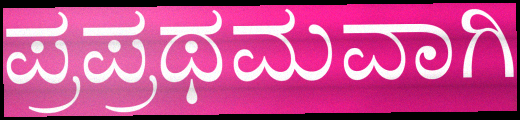
ಪ್ರಪ್ರಥಮವಾಗಿ